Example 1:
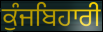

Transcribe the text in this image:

ਕੁੰਜਬਿਹਾਰੀ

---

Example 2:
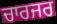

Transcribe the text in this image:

ਚਾਰਜਰ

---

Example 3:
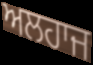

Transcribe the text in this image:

ਅਲਹਾਜ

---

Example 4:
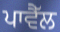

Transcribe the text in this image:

ਪਾਵੈੱਲ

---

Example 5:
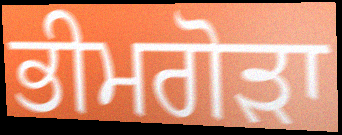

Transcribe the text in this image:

ਭੀਮਗੋੜਾ